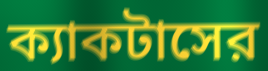
ক্যাকটাসের